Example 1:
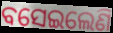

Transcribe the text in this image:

ବସେଇଲେଣି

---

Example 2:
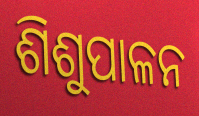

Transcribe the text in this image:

ଶିଶୁପାଳନ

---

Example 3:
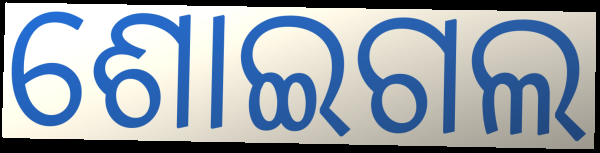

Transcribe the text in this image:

ଶୋଇଗଲ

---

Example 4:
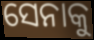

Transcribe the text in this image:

ସେନାକୁ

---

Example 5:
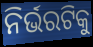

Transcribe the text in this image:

ନିର୍ଭରଟିକୁ